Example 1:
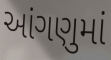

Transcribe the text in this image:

આંગણુમાં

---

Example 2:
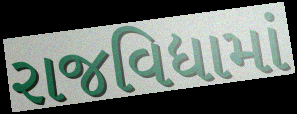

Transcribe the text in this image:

રાજવિદ્યામાં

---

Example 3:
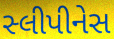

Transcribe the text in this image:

સ્લીપીનેસ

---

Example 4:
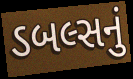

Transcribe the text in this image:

ડબલ્સનું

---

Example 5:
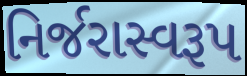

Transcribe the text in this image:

નિર્જરાસ્વરૂપ